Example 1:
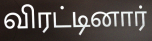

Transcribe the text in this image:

விரட்டினார்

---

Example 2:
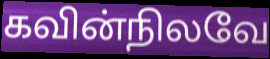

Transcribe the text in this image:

கவின்நிலவே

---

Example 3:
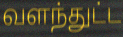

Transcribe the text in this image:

வளந்துட்ட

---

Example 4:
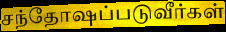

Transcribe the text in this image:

சந்தோஷப்படுவீர்கள்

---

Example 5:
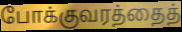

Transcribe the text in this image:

போக்குவரத்தைத்